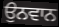
ਉਨਵਾਨ